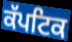
ਕੱਪਟਿਕ